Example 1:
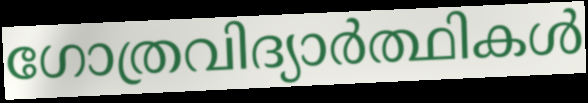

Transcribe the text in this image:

ഗോത്രവിദ്യാർത്ഥികൾ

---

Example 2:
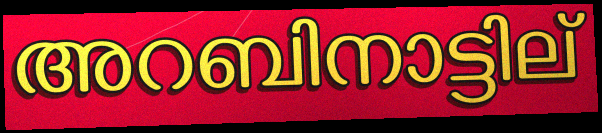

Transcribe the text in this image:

അറബിനാട്ടില്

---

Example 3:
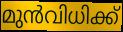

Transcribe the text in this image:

മുൻവിധിക്ക്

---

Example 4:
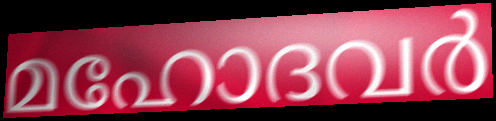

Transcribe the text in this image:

മഹോദവർ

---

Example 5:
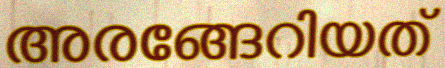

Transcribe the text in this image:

അരങ്ങേറിയത്